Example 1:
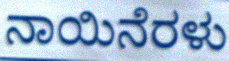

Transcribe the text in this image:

ನಾಯಿನೆರಳು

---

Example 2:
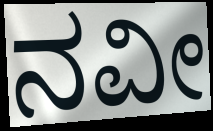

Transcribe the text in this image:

ನವೀ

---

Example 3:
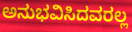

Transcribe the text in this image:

ಅನುಭವಿಸಿದವರಲ್ಲ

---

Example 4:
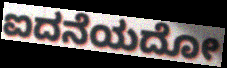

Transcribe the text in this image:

ಐದನೆಯದೋ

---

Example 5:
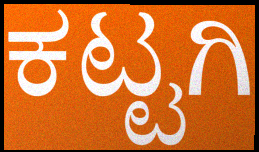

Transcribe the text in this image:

ಕಟ್ಟಗಿ